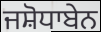
ਜਸ਼ੋਧਾਬੇਨ